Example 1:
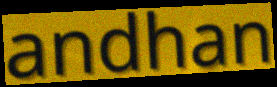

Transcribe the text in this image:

andhan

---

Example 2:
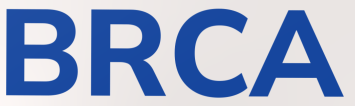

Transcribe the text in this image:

BRCA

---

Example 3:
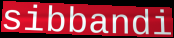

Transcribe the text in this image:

sibbandi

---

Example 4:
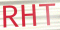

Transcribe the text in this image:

RHT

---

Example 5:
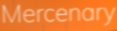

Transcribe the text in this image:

Mercenary